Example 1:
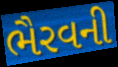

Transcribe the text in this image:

ભૈરવની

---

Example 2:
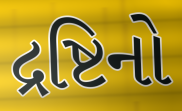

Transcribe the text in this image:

દ્રષ્ટિનો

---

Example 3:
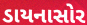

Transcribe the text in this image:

ડાયનાસોર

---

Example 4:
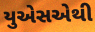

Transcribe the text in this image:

યુએસએથી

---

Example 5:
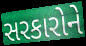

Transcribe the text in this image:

સરકારોને